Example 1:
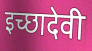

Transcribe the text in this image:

इच्छादेवी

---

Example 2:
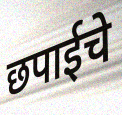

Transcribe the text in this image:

छपाईचे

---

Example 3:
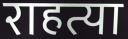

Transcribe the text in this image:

राहत्या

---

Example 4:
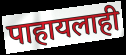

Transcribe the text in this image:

पाहायलाही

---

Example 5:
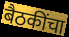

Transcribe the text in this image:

बैठकींचा